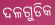
ଦଳଗୁଡିକ